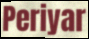
Periyar